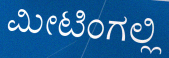
ಮೀಟಿಂಗಲ್ಲಿ